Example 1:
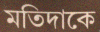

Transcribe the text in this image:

মতিদাকে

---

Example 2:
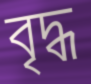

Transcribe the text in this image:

বৃদ্ধ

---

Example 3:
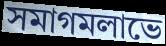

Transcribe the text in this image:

সমাগমলাভে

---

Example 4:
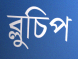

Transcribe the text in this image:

ব্লুচিপ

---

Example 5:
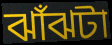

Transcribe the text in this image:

ঝাঁঝটা